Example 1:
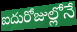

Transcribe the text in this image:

ఐదురోజుల్లోనే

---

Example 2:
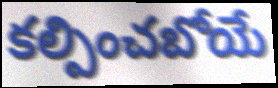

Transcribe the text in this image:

కల్పించబోయే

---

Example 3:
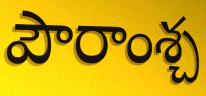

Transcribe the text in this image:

పౌరాంశ్చ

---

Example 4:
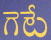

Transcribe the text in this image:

గెటే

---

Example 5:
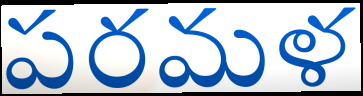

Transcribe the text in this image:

పరమళ